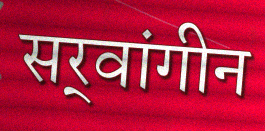
सर्वांगीन